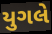
યુગલે